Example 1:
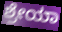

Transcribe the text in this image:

ಶ್ರೇಯಾ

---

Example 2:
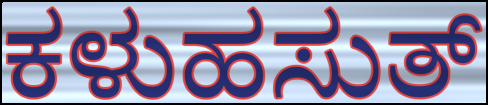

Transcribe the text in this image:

ಕಳುಹಸುತ್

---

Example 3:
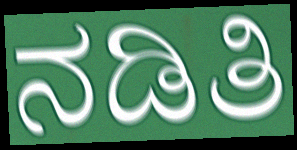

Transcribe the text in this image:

ನಡಿತಿ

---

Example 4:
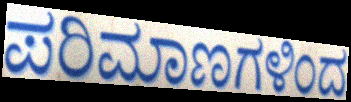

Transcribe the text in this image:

ಪರಿಮಾಣಗಳಿಂದ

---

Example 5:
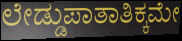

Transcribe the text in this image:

ಲೇಡ್ಡುಪಾತಾತಿಕ್ಕಮೇ